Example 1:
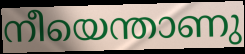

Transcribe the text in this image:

നീയെന്താണു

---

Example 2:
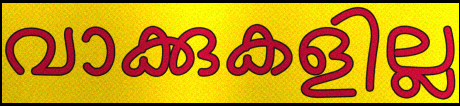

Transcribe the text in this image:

വാക്കുകളില്ല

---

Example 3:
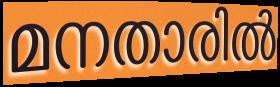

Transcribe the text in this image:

മനതാരിൽ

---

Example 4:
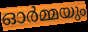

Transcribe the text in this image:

ഓർമ്മയും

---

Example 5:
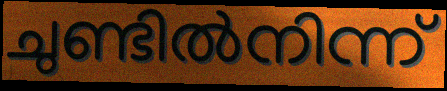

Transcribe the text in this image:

ചുണ്ടിൽനിന്ന്